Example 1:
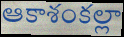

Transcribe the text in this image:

ఆకాశంకల్లా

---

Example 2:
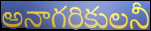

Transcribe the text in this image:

అనాగరికులనీ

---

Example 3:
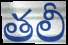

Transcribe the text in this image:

తలీ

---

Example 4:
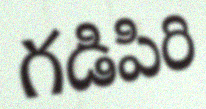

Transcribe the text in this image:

గడిపిరి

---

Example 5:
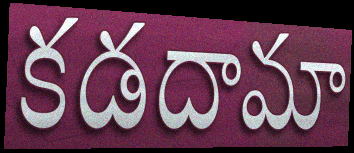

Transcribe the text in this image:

కడదామా